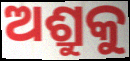
ଅଶ୍ରୁକୁ